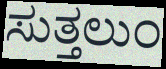
ಸುತ್ತಲುಂ